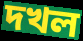
দখল